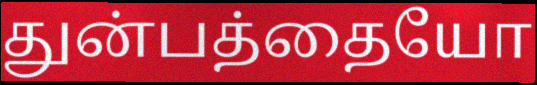
துன்பத்தையோ